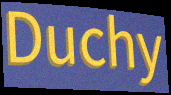
Duchy